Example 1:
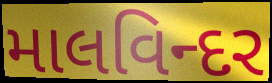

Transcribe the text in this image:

માલવિન્દર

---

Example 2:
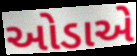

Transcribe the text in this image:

ઓડાએ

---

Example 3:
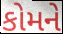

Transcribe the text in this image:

કોમને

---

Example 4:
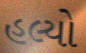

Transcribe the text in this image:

હલ્યો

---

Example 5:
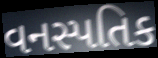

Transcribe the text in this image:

વનસ્પતિક